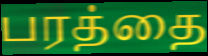
பரத்தை